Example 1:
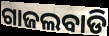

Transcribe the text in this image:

ଗାଜଲବାଡି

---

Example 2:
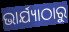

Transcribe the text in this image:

ଭାର୍ଯ୍ୟାଠାରୁ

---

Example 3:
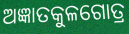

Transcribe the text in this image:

ଅଜ୍ଞାତକୁଳଗୋତ୍ର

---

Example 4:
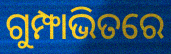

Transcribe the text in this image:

ଗୁମ୍ଫାଭିତରେ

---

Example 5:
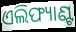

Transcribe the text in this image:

ଏଲିଫ୍ୟାଣ୍ଟ